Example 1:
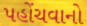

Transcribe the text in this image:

પહોંચવાનો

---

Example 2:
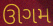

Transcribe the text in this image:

ઊગમ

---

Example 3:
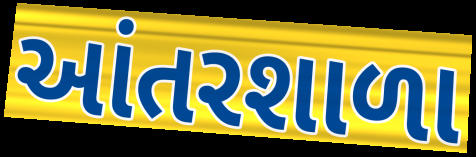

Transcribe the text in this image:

આંતરશાળા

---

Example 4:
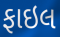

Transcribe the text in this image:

ફાઇલ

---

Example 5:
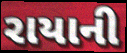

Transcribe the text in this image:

રાયાની